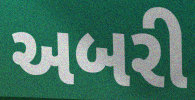
અબરી